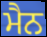
ਮੈਨ